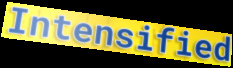
Intensified